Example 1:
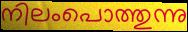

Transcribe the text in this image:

നിലംപൊത്തുന്നു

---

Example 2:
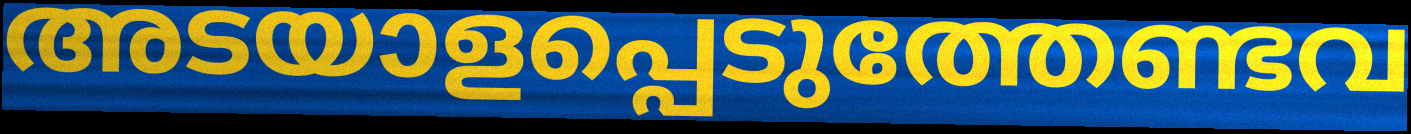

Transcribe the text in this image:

അടയാളപ്പെടുത്തേണ്ടവ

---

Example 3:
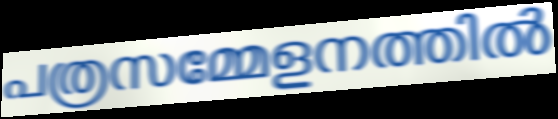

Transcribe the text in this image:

പത്രസമ്മേളനത്തിൽ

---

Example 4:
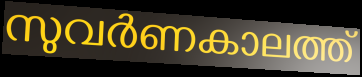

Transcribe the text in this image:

സുവർണകാലത്ത്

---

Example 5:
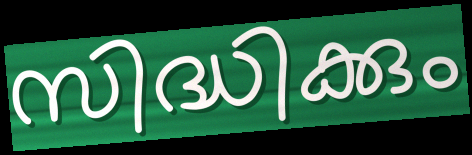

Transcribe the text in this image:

സിദ്ധിക്കും